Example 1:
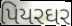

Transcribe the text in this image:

પિયરઘર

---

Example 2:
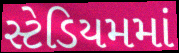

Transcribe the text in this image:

સ્ટેડિયમમાં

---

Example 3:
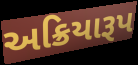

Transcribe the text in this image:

અક્રિયારૂપ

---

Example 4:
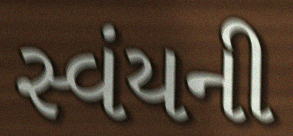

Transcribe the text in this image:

સ્વંયની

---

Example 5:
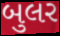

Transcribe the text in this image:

બુલર